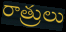
రాత్రులు